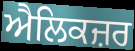
ਐਲਿਕਜ਼ਰ